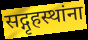
सद्गृहस्थांना